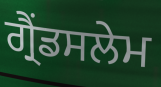
ਗ੍ਰੈਂਡਸਲੇਮ